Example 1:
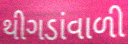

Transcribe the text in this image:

થીગડાંવાળી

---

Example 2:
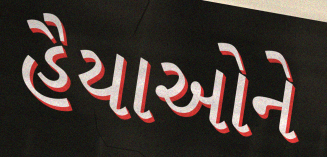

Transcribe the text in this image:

હૈયાઓને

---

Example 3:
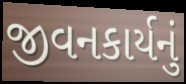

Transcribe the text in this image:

જીવનકાર્યનું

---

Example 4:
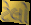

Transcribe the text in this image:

ટેલો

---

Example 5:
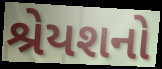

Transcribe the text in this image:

શ્રેયશનો